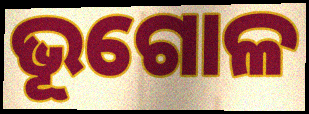
ଭୂଗୋଳ